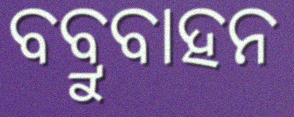
ବବ୍ରୁବାହନ